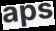
aps